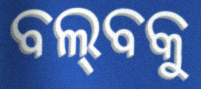
ବଲ୍‌ବକୁ